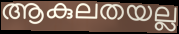
ആകുലതയല്ല